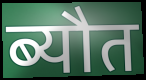
ब्यौत